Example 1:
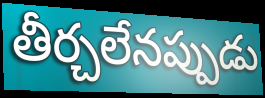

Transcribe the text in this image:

తీర్చలేనప్పుడు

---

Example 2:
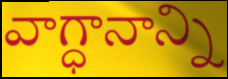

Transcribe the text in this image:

వాగ్ధానాన్ని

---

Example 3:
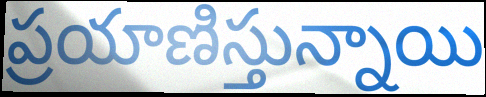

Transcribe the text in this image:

ప్రయాణిస్తున్నాయి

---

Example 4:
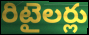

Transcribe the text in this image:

రిటైలర్లు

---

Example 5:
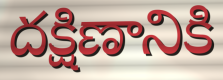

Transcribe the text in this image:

దక్షిణానికి